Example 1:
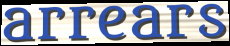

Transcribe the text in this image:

arrears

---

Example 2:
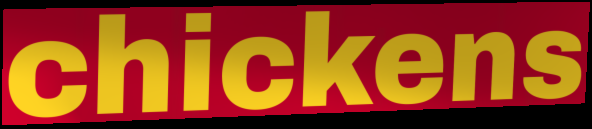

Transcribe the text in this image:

chickens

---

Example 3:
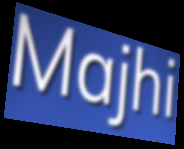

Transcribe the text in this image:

Majhi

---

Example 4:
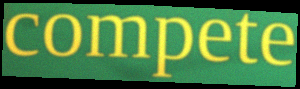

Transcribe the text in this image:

compete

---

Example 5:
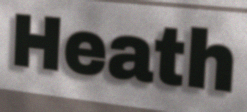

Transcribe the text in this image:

Heath